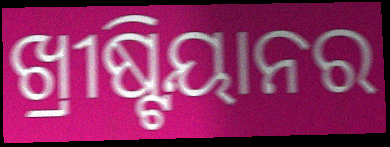
ଖ୍ରୀଷ୍ଟିୟାନର